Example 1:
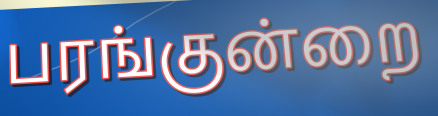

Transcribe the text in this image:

பரங்குன்றை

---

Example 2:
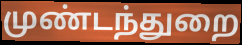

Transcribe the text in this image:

முண்டந்துறை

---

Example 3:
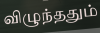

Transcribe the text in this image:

விழுந்ததும்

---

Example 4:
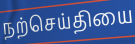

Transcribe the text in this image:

நற்செய்தியை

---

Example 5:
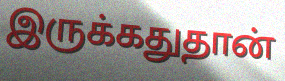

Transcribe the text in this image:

இருக்கதுதான்